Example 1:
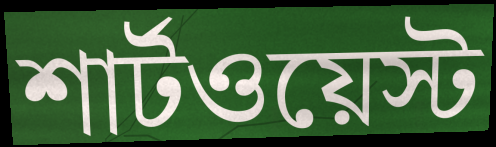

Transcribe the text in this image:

শার্টওয়েস্ট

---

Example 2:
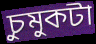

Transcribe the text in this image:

চুমুকটা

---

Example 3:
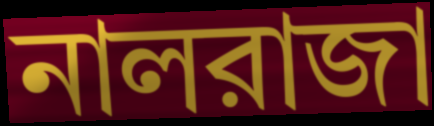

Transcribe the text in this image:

নালরাজা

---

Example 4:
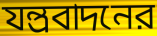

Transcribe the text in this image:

যন্ত্রবাদনের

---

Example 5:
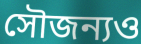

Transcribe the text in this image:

সৌজন্যও